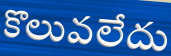
కొలువలేదు